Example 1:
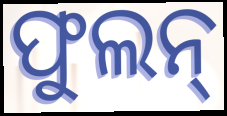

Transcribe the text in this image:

ଫୁଲନ୍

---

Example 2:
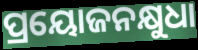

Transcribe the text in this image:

ପ୍ରୟୋଜନକ୍ଷୁଧା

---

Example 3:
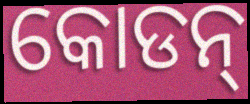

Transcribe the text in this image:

କୋଡନ୍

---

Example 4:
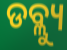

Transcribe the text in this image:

ଡବ୍ଲ୍ୟୁ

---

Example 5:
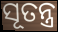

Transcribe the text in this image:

ସୂତନ୍ତ୍ର